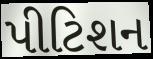
પીટિશન